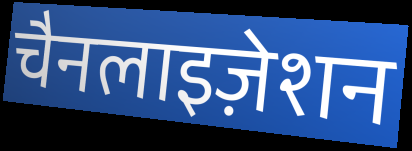
चैनलाइज़ेशन